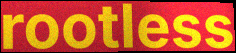
rootless